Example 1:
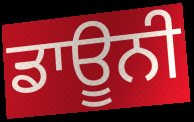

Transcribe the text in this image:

ਡਾਊਨੀ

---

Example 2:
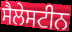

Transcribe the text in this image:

ਸੈਲੇਸਟੀਨ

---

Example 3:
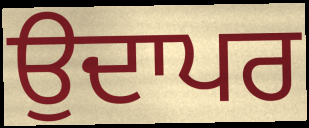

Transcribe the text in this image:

ਉਦਾਪਰ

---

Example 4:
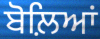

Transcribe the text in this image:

ਬੋਲ਼ਿਆਂ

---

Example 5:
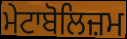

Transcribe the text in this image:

ਮੇਟਾਬੋਲਿਜ਼ਮ